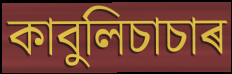
কাবুলিচাচাৰ